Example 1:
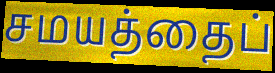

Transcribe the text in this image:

சமயத்தைப்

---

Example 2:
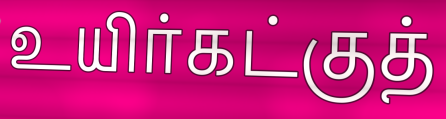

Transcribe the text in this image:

உயிர்கட்குத்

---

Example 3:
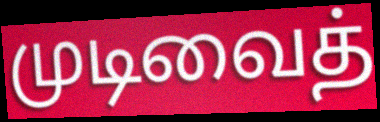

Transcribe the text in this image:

முடிவைத்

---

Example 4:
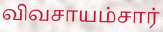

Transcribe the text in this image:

விவசாயம்சார்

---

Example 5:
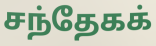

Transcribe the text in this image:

சந்தேகக்